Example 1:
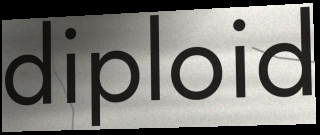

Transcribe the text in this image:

diploid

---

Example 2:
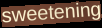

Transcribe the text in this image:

sweetening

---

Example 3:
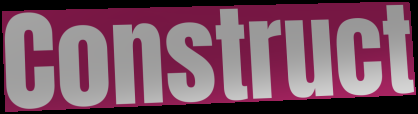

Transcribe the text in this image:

Construct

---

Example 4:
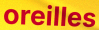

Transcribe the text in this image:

oreilles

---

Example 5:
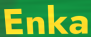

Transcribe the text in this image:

Enka